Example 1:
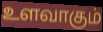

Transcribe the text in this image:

உளவாகும்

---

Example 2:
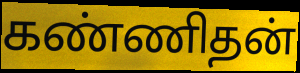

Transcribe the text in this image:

கண்ணிதன்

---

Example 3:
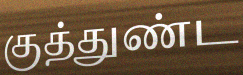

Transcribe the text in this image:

குத்துண்ட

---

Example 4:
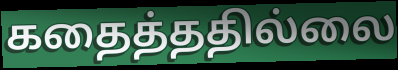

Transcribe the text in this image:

கதைத்ததில்லை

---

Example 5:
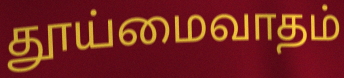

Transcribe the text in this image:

தூய்மைவாதம்